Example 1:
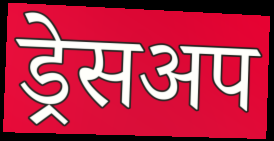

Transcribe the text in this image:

ड्रेसअप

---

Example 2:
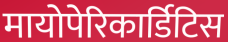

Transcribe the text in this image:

मायोपेरिकार्डिटिस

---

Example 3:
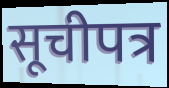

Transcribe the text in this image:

सूचीपत्र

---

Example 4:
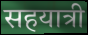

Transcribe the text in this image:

सहयात्री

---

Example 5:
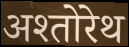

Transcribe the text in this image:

अश्तोरेथ